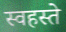
स्वहस्ते